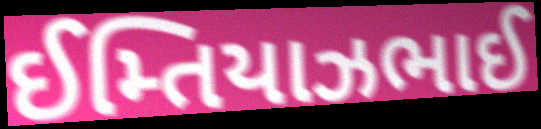
ઈમ્તિયાઝભાઈ